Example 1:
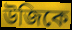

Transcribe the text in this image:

উজিকে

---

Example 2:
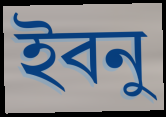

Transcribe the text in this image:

ইবনু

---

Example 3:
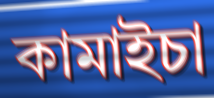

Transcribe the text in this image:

কামাইচা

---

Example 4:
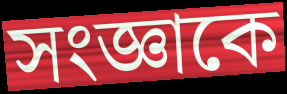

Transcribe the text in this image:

সংজ্ঞাকে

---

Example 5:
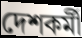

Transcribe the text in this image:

দেশকর্মী